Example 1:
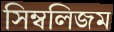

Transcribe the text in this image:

সিম্বলিজম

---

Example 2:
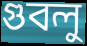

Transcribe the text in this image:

গুবলু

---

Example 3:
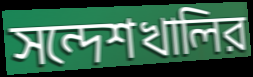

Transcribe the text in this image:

সন্দেশখালির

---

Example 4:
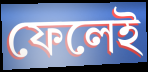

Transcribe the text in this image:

ফেলেই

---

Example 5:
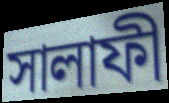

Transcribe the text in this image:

সালাফী